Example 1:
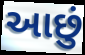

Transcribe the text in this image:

આછું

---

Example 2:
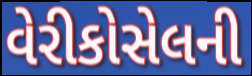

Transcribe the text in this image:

વેરીકોસેલની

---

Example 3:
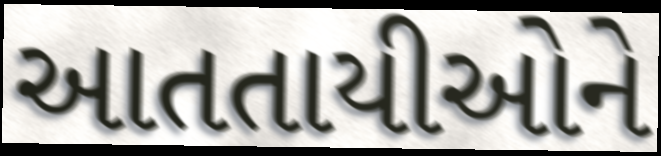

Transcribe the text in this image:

આતતાયીઓને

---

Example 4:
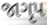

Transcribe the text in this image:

જાગૃપ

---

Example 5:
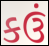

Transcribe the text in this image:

કઉં